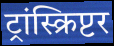
ट्रांस्क्रिप्टर